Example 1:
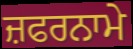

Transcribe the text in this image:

ਜ਼ਫਰਨਾਮੇ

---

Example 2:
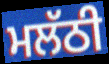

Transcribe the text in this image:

ਮਲੱਠੀ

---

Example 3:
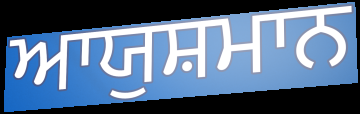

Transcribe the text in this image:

ਆਯੁਸ਼ਮਾਨ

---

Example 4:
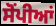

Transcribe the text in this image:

ਸੋਂਪੀਆਂ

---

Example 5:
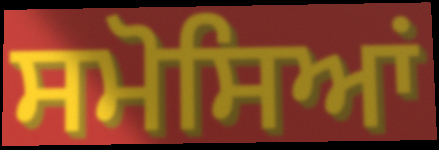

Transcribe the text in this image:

ਸਮੋਸਿਆਂ